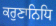
ਕਰੁਣਾਨਿਧਿ